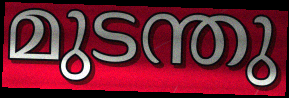
മുടന്തു